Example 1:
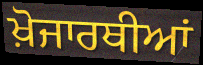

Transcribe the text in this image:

ਖ਼ੋਜਾਰਥੀਆਂ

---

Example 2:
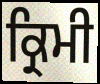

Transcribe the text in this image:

ਕ੍ਰਿਮੀ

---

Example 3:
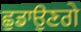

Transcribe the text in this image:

ਛੁਡਾਉਣਗੇ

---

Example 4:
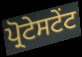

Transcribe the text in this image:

ਪ੍ਰੋਟੇਸਟੇਂਟ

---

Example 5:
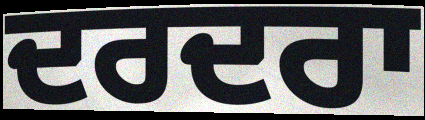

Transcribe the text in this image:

ਦਰਦਰਾ